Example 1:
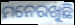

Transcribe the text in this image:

ମନେରଖୁଛି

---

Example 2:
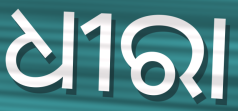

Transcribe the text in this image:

ଧୀରା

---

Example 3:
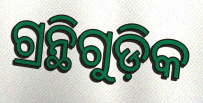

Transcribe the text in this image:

ଗ୍ରନ୍ଥିଗୁଡ଼ିକ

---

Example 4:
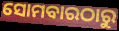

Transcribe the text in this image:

ସୋମବାରଠାରୁ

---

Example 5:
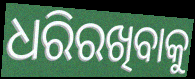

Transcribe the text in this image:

ଧରିରଖିବାକୁ